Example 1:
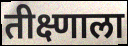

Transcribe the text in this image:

तीक्ष्णाला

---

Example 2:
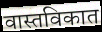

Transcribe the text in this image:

वास्तविकात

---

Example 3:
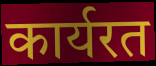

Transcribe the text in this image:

कार्यरत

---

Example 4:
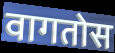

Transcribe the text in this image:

वागतोस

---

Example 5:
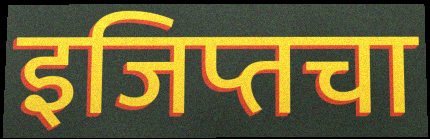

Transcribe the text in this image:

इजिप्तचा